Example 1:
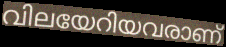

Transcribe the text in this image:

വിലയേറിയവരാണ്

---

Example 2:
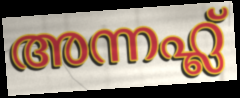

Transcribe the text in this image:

അന്നഹ്ല്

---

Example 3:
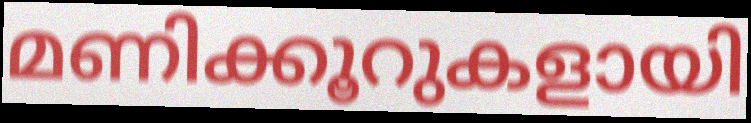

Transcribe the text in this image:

മണിക്കൂറുകളായി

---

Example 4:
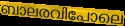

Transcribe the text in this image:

ബാലരവിപോലെ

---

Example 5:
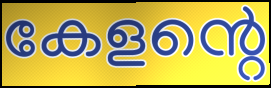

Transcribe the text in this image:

കേളന്റെ